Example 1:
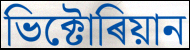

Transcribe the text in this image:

ভিক্টোৰিয়ান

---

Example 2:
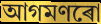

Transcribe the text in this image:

আগমণৰো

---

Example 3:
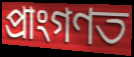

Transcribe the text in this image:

প্ৰাংগণত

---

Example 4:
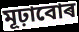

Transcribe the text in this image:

মূঢ়াবোৰ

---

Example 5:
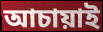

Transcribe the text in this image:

আচায়াই